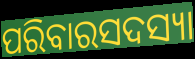
ପରିବାରସଦସ୍ୟା